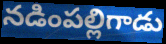
నడింపల్లిగాడు